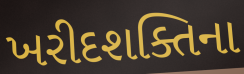
ખરીદશક્તિના